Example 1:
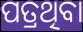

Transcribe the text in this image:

ପତ୍ରଥିବା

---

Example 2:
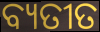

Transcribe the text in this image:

ବ୍ଯତୀତ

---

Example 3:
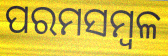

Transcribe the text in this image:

ପରମସମ୍ବଳ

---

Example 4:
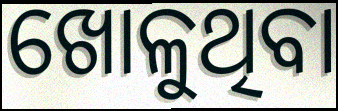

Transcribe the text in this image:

ଖୋଳୁଥିବା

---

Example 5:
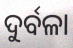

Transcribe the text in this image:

ଦୁର୍ବଳା